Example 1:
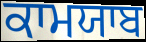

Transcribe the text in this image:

ਕਾਮਯਾਬ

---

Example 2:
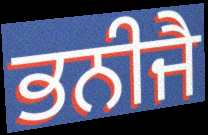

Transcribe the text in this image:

ਭਨੀਜੈ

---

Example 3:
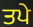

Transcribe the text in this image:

ਤਪੇ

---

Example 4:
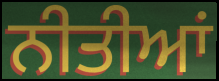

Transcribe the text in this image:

ਨੀਤੀਆਂ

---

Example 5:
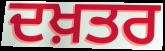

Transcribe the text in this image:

ਦਖ਼ਤਰ